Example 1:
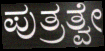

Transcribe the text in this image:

ಪುತ್ರತ್ವೇ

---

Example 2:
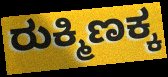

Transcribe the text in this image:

ರುಕ್ಮಿಣಕ್ಕ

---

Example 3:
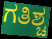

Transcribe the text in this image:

ಗತಿಶ್ಚ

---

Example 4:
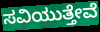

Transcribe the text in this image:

ಸವಿಯುತ್ತೇವೆ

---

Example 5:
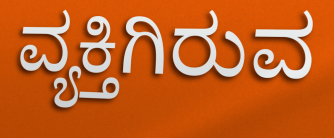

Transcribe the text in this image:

ವ್ಯಕ್ತಿಗಿರುವ